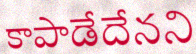
కాపాడేదేనని